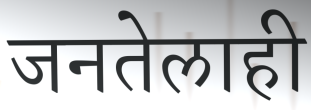
जनतेलाही